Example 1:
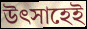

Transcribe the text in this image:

উৎসাহেই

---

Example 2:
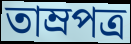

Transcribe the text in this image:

তাম্রপত্র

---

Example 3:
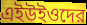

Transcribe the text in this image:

এইউইওদের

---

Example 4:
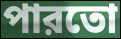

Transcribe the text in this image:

পারতো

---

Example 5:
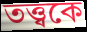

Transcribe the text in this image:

তত্ত্বকে